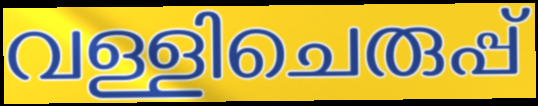
വള്ളിചെരുപ്പ്